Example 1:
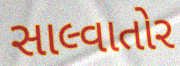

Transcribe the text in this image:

સાલ્વાતોર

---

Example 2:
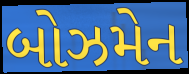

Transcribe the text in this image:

બોઝમેન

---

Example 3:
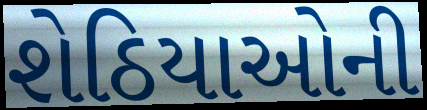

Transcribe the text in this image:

શેઠિયાઓની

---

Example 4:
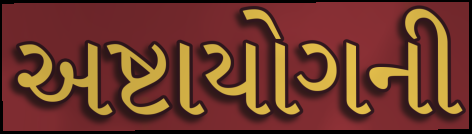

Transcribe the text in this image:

અષ્ટાયોગની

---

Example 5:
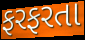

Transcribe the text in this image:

ફરફરતા